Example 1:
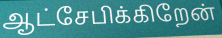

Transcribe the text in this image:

ஆட்சேபிக்கிறேன்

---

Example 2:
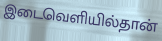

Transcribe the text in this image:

இடைவெளியில்தான்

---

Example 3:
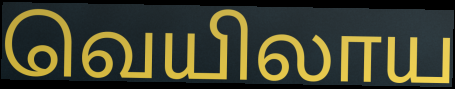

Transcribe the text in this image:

வெயிலாய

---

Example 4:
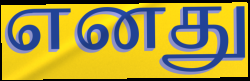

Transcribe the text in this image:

எனது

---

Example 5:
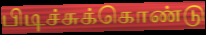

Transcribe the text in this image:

பிடிச்சுக்கொண்டு